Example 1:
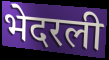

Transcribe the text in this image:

भेदरली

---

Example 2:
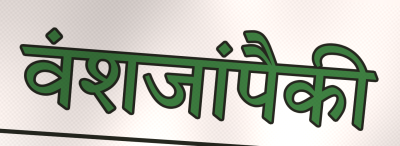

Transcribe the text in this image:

वंशजांपैकी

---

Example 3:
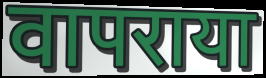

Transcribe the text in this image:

वापराया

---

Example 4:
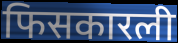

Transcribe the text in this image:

फिसकारली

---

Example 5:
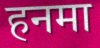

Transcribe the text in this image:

हनमा